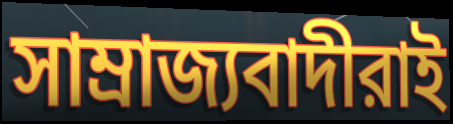
সাম্রাজ্যবাদীরাই